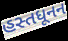
હસ્તધૂનન